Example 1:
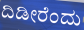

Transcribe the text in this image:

ದಿಡೀರೆಂದು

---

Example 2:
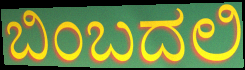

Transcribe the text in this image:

ಬಿಂಬದಲಿ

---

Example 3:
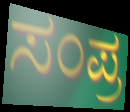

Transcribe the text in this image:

ಸಂಪ್ರ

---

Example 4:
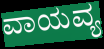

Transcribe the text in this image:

ವಾಯವ್ಯ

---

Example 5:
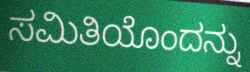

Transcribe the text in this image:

ಸಮಿತಿಯೊಂದನ್ನು